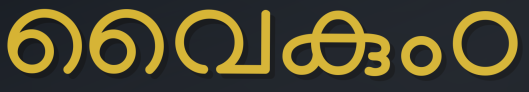
വൈകുംഠ